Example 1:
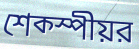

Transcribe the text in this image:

শেক্স্পীয়র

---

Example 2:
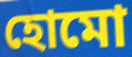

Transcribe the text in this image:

হোমো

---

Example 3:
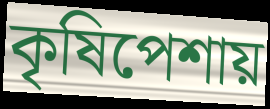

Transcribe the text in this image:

কৃষিপেশায়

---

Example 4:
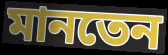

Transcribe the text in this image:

মানতেন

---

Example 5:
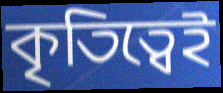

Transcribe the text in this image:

কৃতিত্বেই